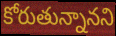
కోరుతున్నానని